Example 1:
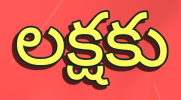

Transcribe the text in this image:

లక్షకు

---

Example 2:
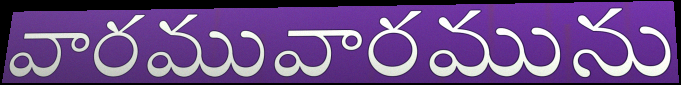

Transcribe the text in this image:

వారమువారమును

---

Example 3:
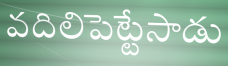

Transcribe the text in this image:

వదిలిపెట్టేసాడు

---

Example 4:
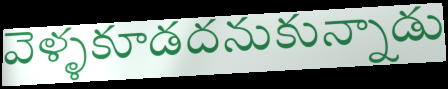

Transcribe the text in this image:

వెళ్ళకూడదనుకున్నాడు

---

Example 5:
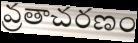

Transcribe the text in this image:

వ్రతాచరణం